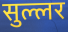
सुल्लर